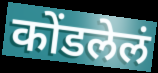
कोंडलेलं